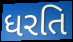
ધરતિ